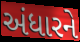
અંધારને